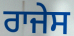
ਰਾਜੇਸ